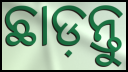
ଛାଡ଼ନ୍ତୁ